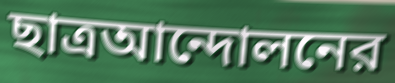
ছাত্রআন্দোলনের